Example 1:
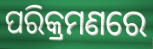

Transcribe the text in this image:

ପରିକ୍ରମଣରେ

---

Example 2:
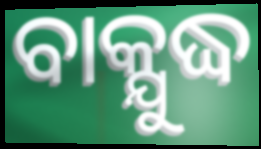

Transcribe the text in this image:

ବାକ୍ଯୁଦ୍ଧ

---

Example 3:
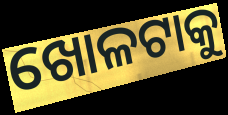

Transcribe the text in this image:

ଖୋଳଟାକୁ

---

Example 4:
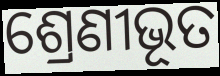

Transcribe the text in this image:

ଶ୍ରେଣୀଭୂତ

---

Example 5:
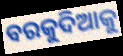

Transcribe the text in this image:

ବରକୁଦିଆକୁ